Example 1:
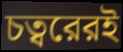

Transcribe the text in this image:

চত্বরেরই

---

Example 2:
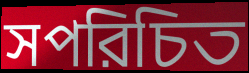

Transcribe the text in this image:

সপরিচিত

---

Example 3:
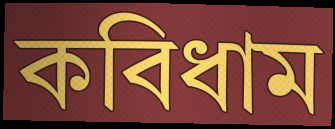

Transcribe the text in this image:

কবিধাম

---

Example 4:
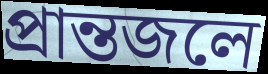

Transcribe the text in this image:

প্রান্তজলে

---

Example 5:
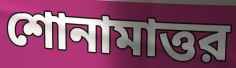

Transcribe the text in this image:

শোনামাত্তর